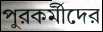
পুরকর্মীদের